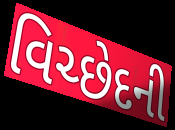
વિચ્છેદની